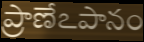
ప్రాణేఽపానం